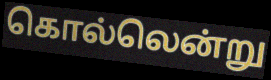
கொல்லென்று